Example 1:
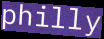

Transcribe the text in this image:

philly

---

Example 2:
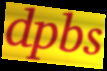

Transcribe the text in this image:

dpbs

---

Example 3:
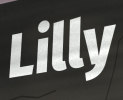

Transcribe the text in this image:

Lilly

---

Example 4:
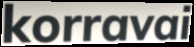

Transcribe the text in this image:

korravai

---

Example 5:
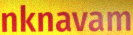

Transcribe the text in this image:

nknavam